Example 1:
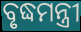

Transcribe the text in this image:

ବୃଦ୍ଧମନ୍ତ୍ରୀ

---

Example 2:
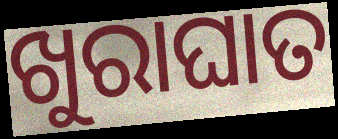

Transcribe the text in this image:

ଖୁରାଘାତ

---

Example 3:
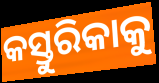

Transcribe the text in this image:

କସ୍ତୁରିକାକୁ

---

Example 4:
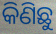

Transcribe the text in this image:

କିଣିଛୁ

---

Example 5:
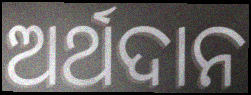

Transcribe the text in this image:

ଅର୍ଥଦାନ